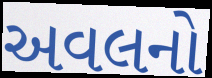
અવલનો